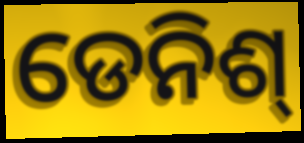
ଡେନିଶ୍